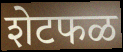
शेटफळ